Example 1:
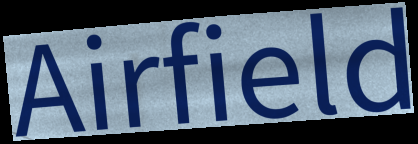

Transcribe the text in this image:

Airfield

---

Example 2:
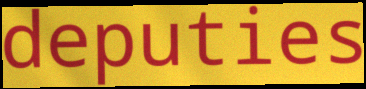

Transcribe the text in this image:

deputies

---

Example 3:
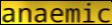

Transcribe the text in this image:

anaemic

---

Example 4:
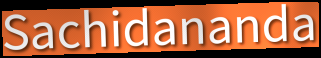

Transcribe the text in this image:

Sachidananda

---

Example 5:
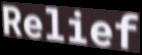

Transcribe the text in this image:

Relief